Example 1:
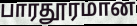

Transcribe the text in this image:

பாரதூரமான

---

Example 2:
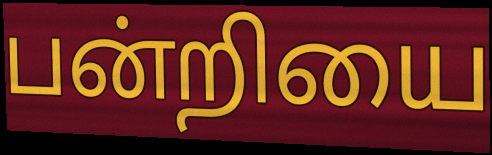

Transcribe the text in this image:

பன்றியை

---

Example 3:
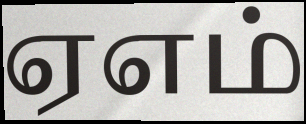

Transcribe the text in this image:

ஏஎம்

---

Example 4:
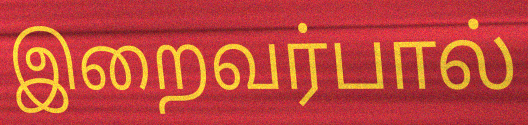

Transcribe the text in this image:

இறைவர்பால்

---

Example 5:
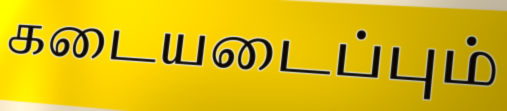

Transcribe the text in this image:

கடையடைப்பும்